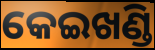
କେଇଖଣ୍ଡି